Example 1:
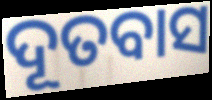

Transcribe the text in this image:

ଦୂତବାସ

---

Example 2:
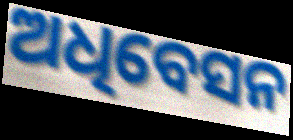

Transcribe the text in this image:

ଅଧିବେସନ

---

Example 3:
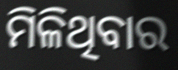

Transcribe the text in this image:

ମିଳିଥିବାର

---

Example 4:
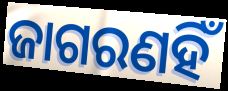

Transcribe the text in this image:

ଜାଗରଣହିଁ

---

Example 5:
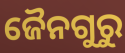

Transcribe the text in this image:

ଜୈନଗୁରୁ